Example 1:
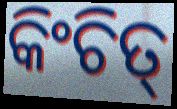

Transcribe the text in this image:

କିଂଚିତ୍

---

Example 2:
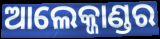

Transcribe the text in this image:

ଆଲେକ୍ଜାଣ୍ଡର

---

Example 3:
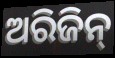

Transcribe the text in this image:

ଅରିଜିନ୍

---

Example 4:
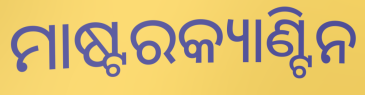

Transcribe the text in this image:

ମାଷ୍ଟରକ୍ୟାଣ୍ଟିନ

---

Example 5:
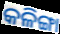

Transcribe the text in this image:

କଳିଙ୍ଗା